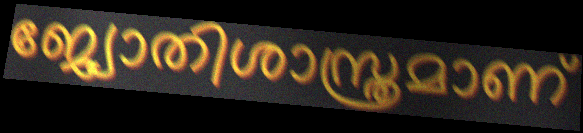
ജ്യോതിശാസ്ത്രമാണ്